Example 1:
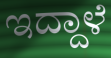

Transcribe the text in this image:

ಇದ್ದಾಳೆ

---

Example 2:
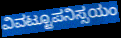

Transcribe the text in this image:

ವಿವಟ್ಟೂಪನಿಸ್ಸಯಂ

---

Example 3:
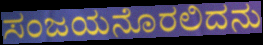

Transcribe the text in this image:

ಸಂಜಯನೊರಲಿದನು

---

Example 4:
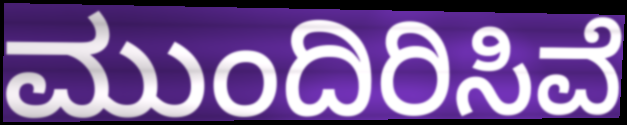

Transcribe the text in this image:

ಮುಂದಿರಿಸಿವೆ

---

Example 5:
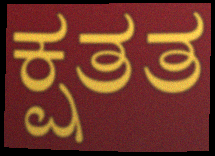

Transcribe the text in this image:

ಕ್ಷತತ